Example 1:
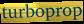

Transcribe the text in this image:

turboprop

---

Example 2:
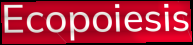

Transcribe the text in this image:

Ecopoiesis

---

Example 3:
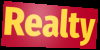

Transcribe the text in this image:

Realty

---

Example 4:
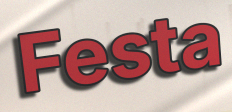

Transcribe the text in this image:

Festa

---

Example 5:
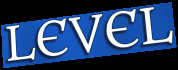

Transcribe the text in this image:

LEVEL